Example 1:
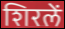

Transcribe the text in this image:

शिरलें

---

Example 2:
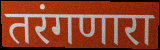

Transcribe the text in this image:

तरंगणारा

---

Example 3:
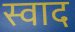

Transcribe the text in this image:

स्वाद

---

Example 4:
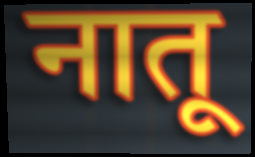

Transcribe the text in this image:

नातू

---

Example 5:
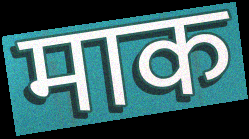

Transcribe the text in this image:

माक